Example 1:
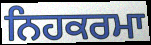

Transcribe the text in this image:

ਨਿਹਕਰਮਾ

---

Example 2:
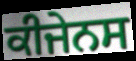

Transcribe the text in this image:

ਕੀਜੇਨਸ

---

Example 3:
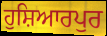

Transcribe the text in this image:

ਹੁਸ਼ਿਆਰਪੁਰ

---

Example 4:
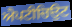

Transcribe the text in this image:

ਐਪਟੀਚਿਉਟ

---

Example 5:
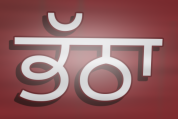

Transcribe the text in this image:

ਭੱਠਾ